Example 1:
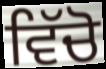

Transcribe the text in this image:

ਵਿੱਚੋ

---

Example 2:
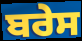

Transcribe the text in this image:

ਬਰੇਸ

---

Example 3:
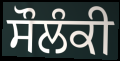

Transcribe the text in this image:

ਸੌਲੰਕੀ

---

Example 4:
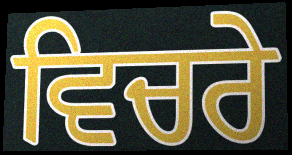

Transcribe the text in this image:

ਵਿਚਰੇ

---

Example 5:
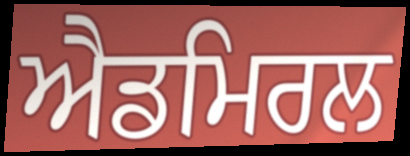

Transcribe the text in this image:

ਐਡਮਿਰਲ